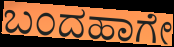
ಬಂದಹಾಗೇ